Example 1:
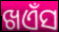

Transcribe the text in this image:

ଖଏଁସ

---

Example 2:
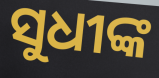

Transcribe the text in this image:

ସୁଧୀଙ୍କ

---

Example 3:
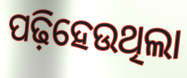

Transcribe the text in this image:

ପଢ଼ିହେଉଥିଲା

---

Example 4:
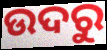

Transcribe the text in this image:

ଉଦରୁ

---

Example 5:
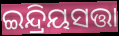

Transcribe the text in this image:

ଇନ୍ଦ୍ରିୟସତ୍ତା